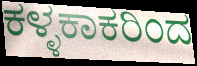
ಕಳ್ಳಕಾಕರಿಂದ